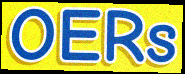
OERs